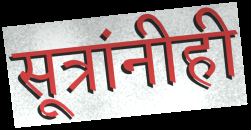
सूत्रांनीही